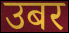
उबर